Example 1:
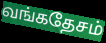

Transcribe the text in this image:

வங்கதேசம்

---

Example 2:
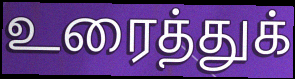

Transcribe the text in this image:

உரைத்துக்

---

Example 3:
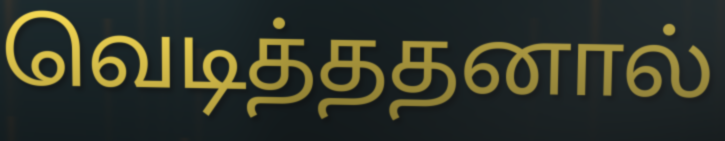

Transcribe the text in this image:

வெடித்ததனால்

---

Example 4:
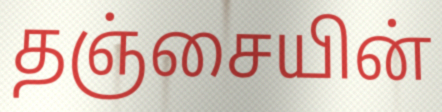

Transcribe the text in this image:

தஞ்சையின்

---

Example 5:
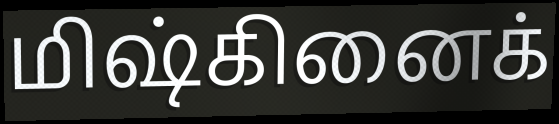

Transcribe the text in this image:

மிஷ்கினைக்